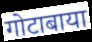
गोटाबाया